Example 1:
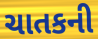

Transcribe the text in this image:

ચાતકની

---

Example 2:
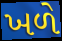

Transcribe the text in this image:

ખળે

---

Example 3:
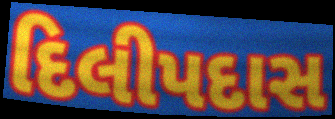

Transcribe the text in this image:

દિલીપદાસ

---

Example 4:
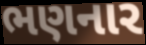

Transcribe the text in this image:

ભણનાર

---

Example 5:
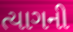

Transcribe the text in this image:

ત્યાગની